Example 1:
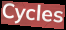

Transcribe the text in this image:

Cycles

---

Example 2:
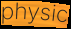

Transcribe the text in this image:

physic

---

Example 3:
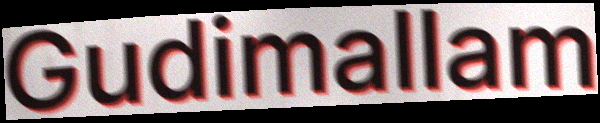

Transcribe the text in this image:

Gudimallam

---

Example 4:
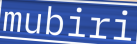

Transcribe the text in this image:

mubiri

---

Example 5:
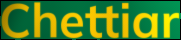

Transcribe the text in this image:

Chettiar